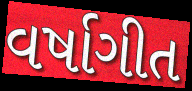
વર્ષાગીત